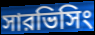
সারভিসিং